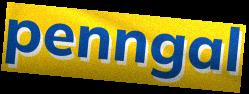
penngal